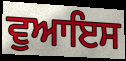
ਵੁਆਇਸ